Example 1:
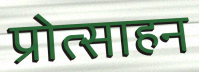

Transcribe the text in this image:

प्रोत्‍साहन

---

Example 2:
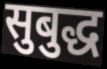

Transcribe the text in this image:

सुबुद्ध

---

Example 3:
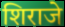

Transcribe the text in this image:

शिराजे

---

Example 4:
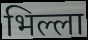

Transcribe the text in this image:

भिल्ला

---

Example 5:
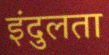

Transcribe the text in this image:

इंदुलता